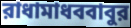
রাধামাধববাবুর